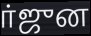
ர்ஜுன